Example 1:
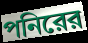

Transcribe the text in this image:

পনিরের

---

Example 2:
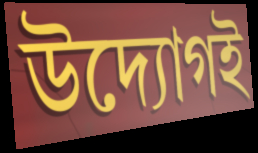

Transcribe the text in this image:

উদ্যোগই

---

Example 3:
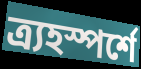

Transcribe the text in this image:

ত্র্যহস্পর্শে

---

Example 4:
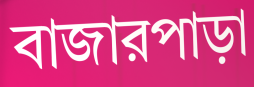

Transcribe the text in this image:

বাজারপাড়া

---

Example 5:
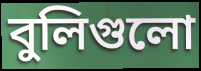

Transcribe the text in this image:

বুলিগুলো